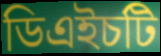
ডিএইচটি